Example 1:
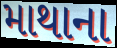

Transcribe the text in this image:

માથાના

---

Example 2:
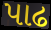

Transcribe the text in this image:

પાઢ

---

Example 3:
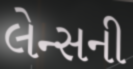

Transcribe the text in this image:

લેન્સની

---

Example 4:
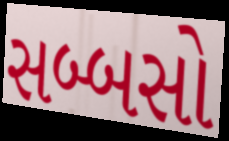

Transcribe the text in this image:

સબ્બસો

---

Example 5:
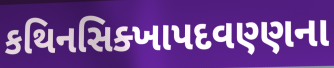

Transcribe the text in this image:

કથિનસિક્ખાપદવણ્ણના